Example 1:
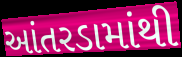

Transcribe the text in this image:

આંતરડામાંથી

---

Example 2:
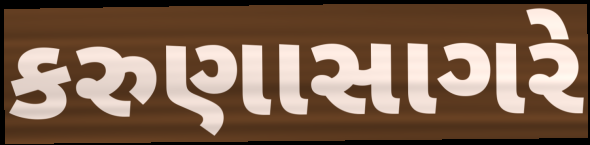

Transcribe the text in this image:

કરુણાસાગરે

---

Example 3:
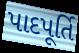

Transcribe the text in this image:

પાદપૂર્તિ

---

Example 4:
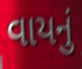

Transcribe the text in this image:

વાયનું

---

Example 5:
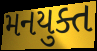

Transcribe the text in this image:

મનયુક્ત